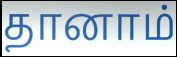
தானாம்